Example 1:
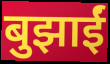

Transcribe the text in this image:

बुझाईं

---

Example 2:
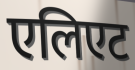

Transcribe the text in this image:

एलिएट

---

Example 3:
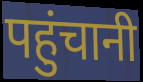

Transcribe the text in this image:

पहुंचानी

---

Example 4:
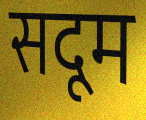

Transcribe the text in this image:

सदूम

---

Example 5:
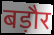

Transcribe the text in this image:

बड़ौर